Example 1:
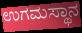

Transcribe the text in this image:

ಉಗಮಸ್ಥಾನ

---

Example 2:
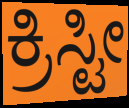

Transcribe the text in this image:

ಕ್ರಿಸ್ಟೀ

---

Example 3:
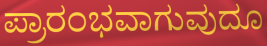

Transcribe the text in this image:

ಪ್ರಾರಂಭವಾಗುವುದೂ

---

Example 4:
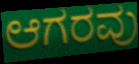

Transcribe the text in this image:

ಆಗರವು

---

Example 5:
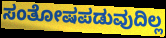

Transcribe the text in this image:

ಸಂತೋಷಪಡುವುದಿಲ್ಲ